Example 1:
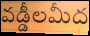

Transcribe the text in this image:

వడ్డీలమీద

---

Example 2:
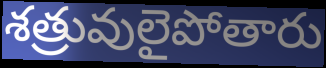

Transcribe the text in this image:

శత్రువులైపోతారు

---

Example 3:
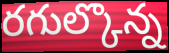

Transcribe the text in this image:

రగుల్కొన్న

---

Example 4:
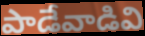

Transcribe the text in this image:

పాడేవాడివి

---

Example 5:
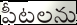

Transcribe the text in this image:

పీటలను